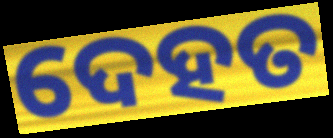
ଦେହତ